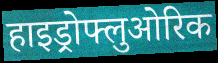
हाइड्रोफ्लुओरिक